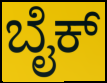
ಬೈಕ್